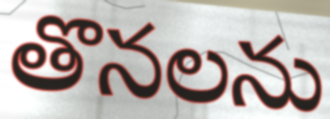
తొనలను